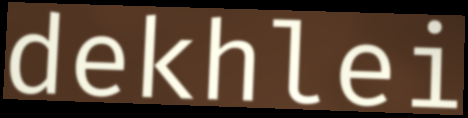
dekhlei